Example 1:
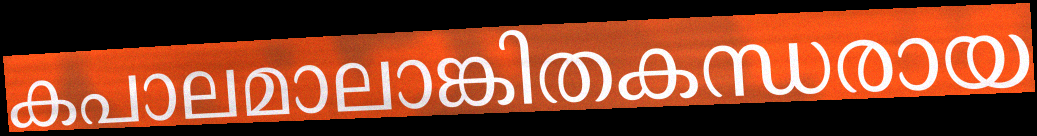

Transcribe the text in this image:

കപാലമാലാങ്കിതകന്ധരായ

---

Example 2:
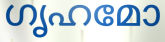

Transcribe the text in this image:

ഗൃഹമോ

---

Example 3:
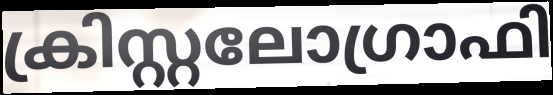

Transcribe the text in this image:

ക്രിസ്റ്റലോഗ്രാഫി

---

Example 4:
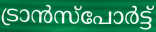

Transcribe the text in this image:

ട്രാൻസ്പോർട്ട്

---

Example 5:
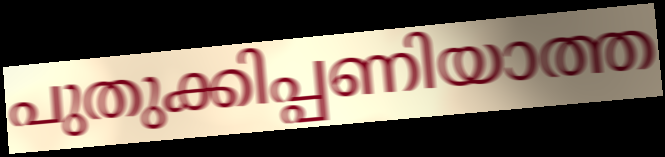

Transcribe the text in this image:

പുതുക്കിപ്പണിയാത്ത